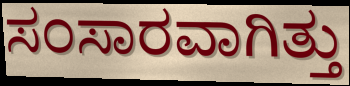
ಸಂಸಾರವಾಗಿತ್ತು